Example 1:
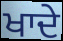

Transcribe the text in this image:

ਖਾਦੇ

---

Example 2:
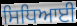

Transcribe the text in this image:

ਸਿਧਿਆਈ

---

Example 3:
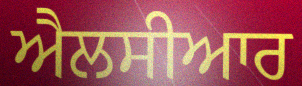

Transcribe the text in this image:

ਐਲਸੀਆਰ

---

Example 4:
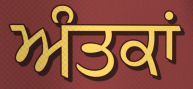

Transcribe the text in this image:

ਅੰਤਕਾਂ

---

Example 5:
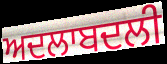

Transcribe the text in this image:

ਅਦਲਾਬਦਲੀ